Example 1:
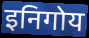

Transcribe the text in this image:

इनिगोय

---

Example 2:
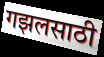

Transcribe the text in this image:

गझलसाठी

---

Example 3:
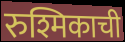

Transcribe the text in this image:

रुश्मिकाची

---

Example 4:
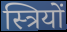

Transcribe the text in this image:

स्त्रियों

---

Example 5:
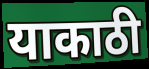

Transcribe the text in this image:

याकाठी